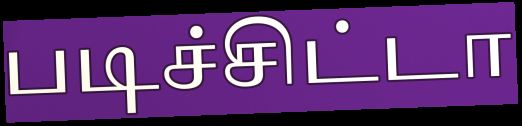
படிச்சிட்டா